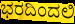
ಭರದಿಂದಲಿ